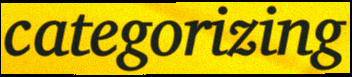
categorizing